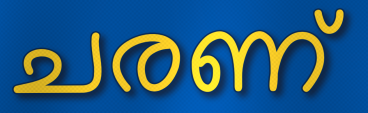
ചരണ്